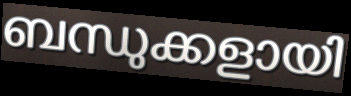
ബന്ധുക്കളായി